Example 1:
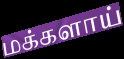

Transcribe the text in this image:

மக்களாய்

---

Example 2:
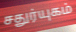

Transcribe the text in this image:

சதுர்யுகம்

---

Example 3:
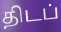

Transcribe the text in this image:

திடப்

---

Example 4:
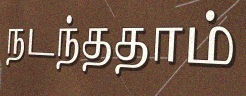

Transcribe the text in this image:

நடந்ததாம்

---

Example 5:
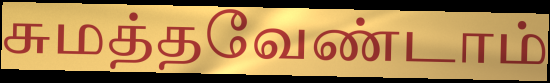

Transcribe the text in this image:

சுமத்தவேண்டாம்